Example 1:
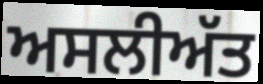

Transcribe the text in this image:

ਅਸਲੀਅੱਤ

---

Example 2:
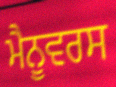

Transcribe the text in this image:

ਮੈਨੂਵਰਸ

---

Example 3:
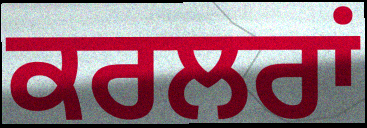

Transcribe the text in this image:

ਕਰਲਰਾਂ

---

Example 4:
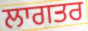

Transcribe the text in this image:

ਲਾਗਤਰ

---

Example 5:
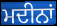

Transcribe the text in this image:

ਮਦੀਨਾਂ